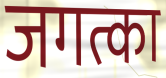
जगत्का